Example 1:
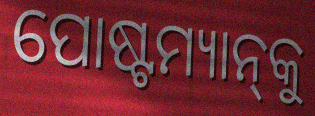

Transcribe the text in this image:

ପୋଷ୍ଟମ୍ୟାନ୍‌କୁ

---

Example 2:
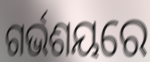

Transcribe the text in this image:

ଗର୍ଭଶୟରେ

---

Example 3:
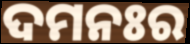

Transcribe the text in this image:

ଦମନଃର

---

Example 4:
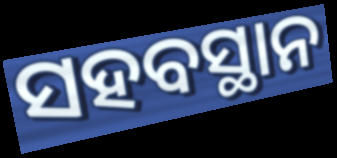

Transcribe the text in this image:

ସହବସ୍ଥାନ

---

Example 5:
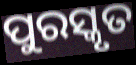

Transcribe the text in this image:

ପୁରସ୍କୃତ